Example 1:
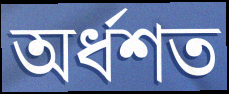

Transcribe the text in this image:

অর্ধশত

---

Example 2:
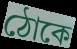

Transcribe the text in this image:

ঠোকে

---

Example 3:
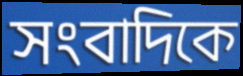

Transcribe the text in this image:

সংবাদিকে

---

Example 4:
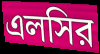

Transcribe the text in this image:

এলসির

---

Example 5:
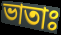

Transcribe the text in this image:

ভাতাঃ